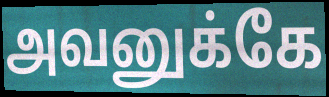
அவனுக்கே